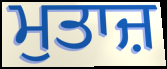
ਮੁਤਾਜ਼